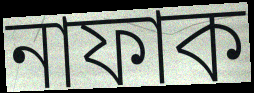
নাফাক